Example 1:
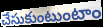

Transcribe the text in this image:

చేసుకుంటుంటాం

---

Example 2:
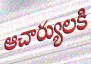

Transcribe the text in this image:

ఆచార్యులకి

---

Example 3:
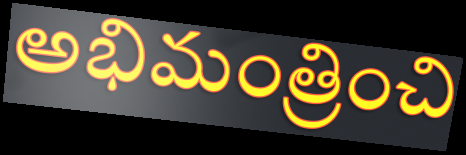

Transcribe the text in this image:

అభిమంత్రించి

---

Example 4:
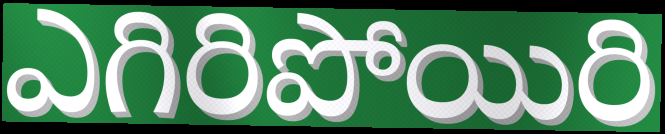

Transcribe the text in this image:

ఎగిరిపోయిరి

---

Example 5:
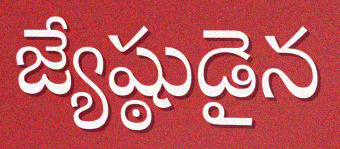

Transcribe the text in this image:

జ్యేష్ఠుడైన